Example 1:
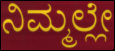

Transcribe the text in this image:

ನಿಮ್ಮಲ್ಲೇ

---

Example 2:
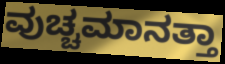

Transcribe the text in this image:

ವುಚ್ಚಮಾನತ್ತಾ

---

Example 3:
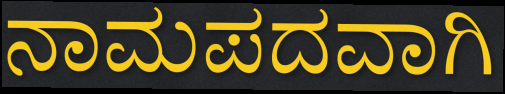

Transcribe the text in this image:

ನಾಮಪದವಾಗಿ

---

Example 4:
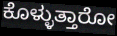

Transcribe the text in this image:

ಕೊಳ್ಳುತ್ತಾರೋ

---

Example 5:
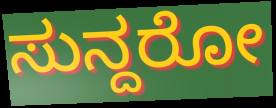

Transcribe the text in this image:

ಸುನ್ದರೋ